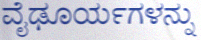
ವೈಢೂರ್ಯಗಳನ್ನು